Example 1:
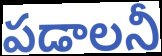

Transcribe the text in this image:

పడాలనీ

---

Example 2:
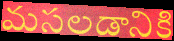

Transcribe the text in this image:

మసలడానికి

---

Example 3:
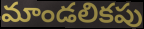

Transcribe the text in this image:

మాండలికపు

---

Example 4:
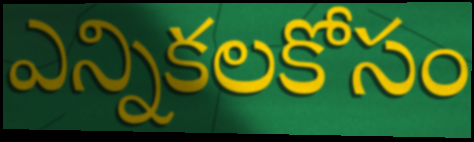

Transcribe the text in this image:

ఎన్నికలకోసం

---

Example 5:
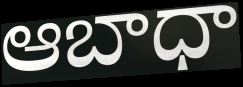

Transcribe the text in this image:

ఆబాధా